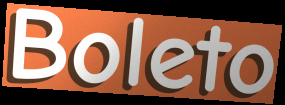
Boleto